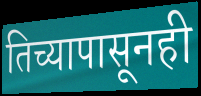
तिच्यापासूनही